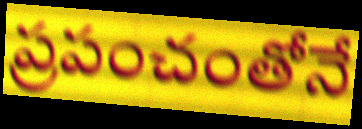
ప్రపంచంతోనే